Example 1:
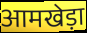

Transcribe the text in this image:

आमखेड़ा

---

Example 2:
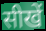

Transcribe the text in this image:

सीखें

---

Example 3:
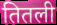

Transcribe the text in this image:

तितली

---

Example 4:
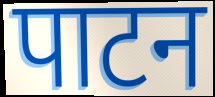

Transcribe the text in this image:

पाटन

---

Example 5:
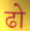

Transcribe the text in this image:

ढो